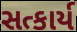
સત્કાર્ય